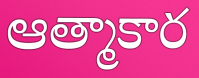
ఆత్మాకార